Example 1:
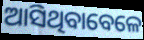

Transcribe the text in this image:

ଆସିଥିବାବେଳେ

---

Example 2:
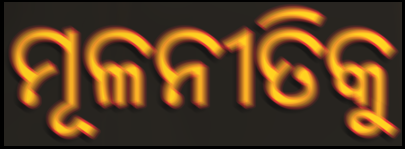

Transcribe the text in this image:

ମୂଳନୀତିକୁ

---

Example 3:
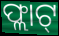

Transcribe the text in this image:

ଫ୍ଲାଟ୍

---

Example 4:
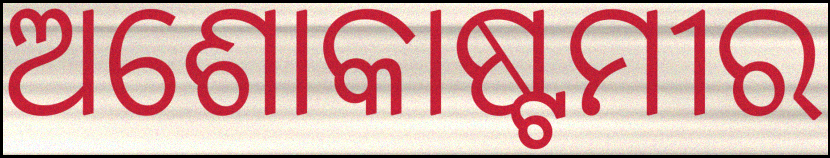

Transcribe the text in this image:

ଅଶୋକାଷ୍ଟମୀର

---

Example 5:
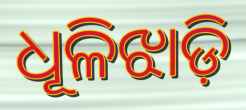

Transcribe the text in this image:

ଧୂଳିଝାଡ଼ି